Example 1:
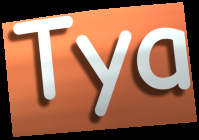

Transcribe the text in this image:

Tya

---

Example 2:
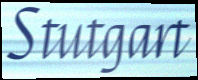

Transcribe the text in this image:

Stutgart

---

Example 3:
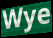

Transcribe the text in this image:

Wye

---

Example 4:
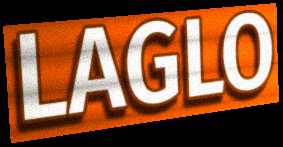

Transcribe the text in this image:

LAGLO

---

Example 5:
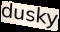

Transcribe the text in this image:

dusky